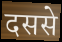
दससे